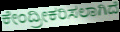
ಕೇಂದ್ರೀಕರಿಸಲಾಗಿದೆ